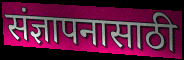
संज्ञापनासाठी